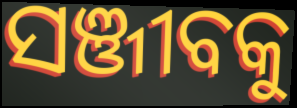
ସଞ୍ଜୀବକୁ